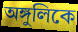
অঙ্গুলিকে